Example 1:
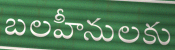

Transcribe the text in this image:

బలహీనులకు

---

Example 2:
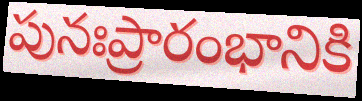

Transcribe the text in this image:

పునఃప్రారంభానికి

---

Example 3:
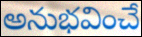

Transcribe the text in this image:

అనుభవించే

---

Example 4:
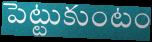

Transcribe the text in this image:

పెట్టుకుంటం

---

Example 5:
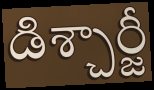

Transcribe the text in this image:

డిశ్చార్జీ